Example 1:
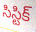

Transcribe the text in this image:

సిస్టిక్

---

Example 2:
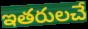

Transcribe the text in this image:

ఇతరులచే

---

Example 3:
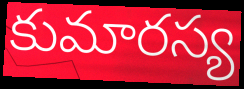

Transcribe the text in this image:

కుమారస్య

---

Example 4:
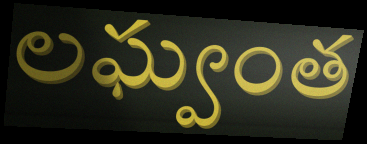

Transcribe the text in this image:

లఘ్వంత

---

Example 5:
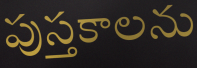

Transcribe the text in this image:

పుస్తకాలను